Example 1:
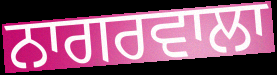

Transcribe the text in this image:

ਨਾਗਰਵਾਲਾ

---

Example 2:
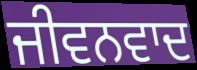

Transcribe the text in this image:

ਜੀਵਨਵਾਦ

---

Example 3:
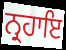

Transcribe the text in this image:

ਨ੍ਰਹਾਇ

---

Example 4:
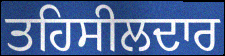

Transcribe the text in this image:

ਤਹਿਸੀਲਦਾਰ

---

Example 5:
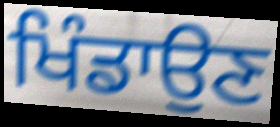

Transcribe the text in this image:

ਖਿੰਡਾਉਣ